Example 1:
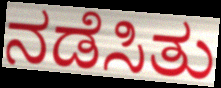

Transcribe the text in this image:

ನಡೆಸಿತು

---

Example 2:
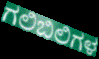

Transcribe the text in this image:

ಗಲಿಬಿಲಿಗಳ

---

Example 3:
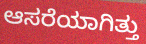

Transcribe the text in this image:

ಆಸರೆಯಾಗಿತ್ತು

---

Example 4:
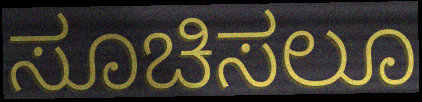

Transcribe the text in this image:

ಸೂಚಿಸಲೂ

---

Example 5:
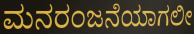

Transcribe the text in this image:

ಮನರಂಜನೆಯಾಗಲೀ